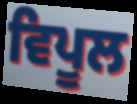
ਵਿਪੂਲ